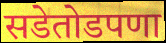
सडेतोडपणा